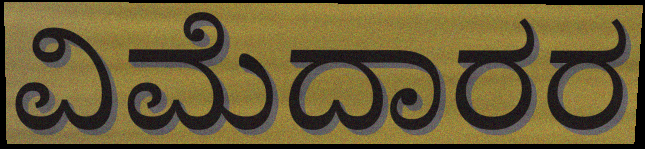
ವಿಮೆದಾರರ